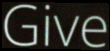
Give